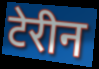
टेरीन